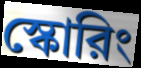
স্কোরিং